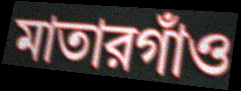
মাতারগাঁও